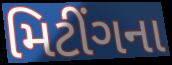
મિટીંગના